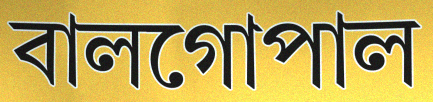
বালগোপাল